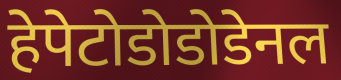
हेपेटोडोडोडेनल